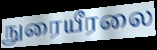
நுரையீரலை